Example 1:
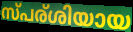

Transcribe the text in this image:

സ്പര്ശിയായ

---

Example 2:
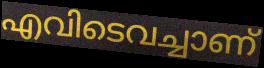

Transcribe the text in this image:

എവിടെവച്ചാണ്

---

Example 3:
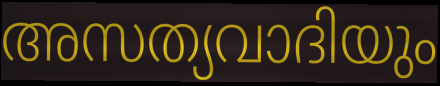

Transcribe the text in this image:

അസത്യവാദിയും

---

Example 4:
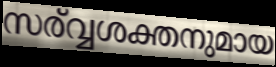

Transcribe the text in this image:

സര്വ്വശക്തനുമായ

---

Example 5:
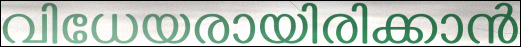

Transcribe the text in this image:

വിധേയരായിരിക്കാൻ